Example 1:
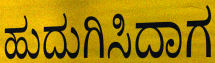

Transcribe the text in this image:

ಹುದುಗಿಸಿದಾಗ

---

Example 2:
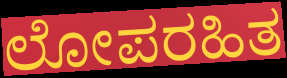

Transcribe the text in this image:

ಲೋಪರಹಿತ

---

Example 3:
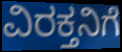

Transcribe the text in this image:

ವಿರಕ್ತನಿಗೆ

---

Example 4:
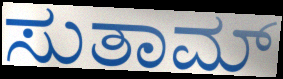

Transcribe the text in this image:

ಸುತಾಮ್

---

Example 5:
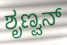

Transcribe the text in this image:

ಶೃಣ್ವನ್